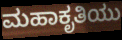
ಮಹಾಕೃತಿಯು